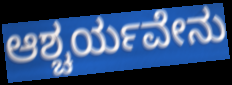
ಆಶ್ಚರ್ಯವೇನು